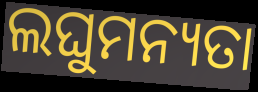
ଲଘୁମନ୍ୟତା